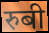
रुबी